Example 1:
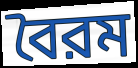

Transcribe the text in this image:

বৈরম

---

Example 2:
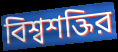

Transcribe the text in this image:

বিশ্বশক্তির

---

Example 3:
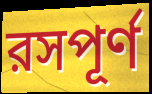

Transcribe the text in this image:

রসপূর্ণ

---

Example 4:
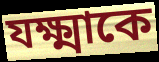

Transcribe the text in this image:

যক্ষ্মাকে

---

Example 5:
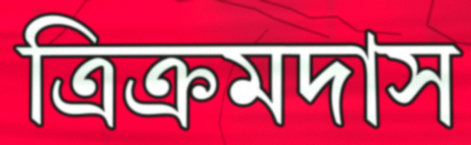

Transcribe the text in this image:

ত্রিক্রমদাস